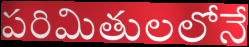
పరిమితులలోనే